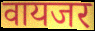
वायजर